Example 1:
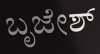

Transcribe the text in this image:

ಬೃಜೇಶ್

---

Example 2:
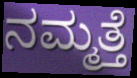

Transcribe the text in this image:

ನಮ್ಮತ್ತೆ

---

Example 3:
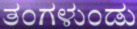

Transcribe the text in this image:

ತಂಗಳುಂಡು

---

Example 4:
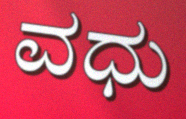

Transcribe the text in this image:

ವಧು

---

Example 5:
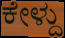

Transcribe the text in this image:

ಕೇಳ್ದು